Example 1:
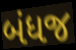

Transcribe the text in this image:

બંધજ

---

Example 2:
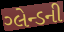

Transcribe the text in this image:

ગ્લેન્ડની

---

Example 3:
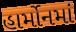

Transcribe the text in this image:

હાર્મોનમાં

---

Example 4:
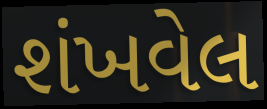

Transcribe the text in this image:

શંખવેલ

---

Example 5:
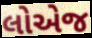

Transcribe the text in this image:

લોએજ